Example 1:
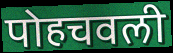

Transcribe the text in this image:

पोहचवली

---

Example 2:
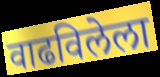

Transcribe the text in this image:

वाढविलेला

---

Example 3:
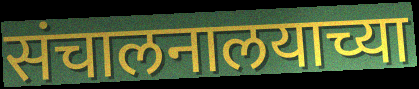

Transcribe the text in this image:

संचालनालयाच्या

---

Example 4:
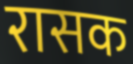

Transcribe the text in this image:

रासक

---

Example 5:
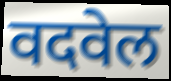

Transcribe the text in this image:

वदवेल